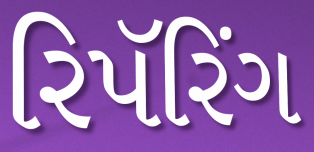
રિપૅરિંગ